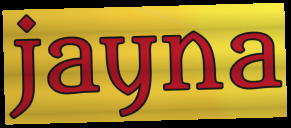
jayna